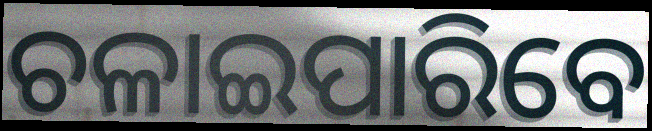
ଚଳାଇପାରିବେ